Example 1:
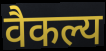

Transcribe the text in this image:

वैकल्य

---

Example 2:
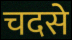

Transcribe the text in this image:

चदसे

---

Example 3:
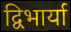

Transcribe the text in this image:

द्विभार्या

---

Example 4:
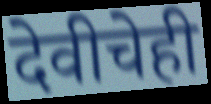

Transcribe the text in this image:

देवीचेही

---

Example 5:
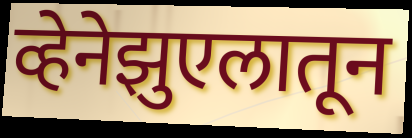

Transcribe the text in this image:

व्हेनेझुएलातून